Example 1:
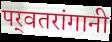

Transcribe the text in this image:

पर्वतरांगानी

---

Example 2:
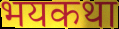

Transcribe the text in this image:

भयकथा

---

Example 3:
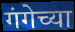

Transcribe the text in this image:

गंगेच्या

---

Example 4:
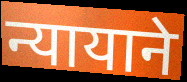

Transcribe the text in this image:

न्यायाने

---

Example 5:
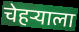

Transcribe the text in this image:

चेहऱ्याला